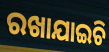
ରଖାଯାଇଚି